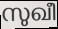
സുഖീ